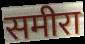
समीरा